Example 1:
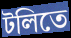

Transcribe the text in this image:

টলিতে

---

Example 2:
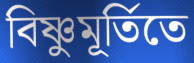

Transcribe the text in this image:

বিষ্ণুমূর্তিতে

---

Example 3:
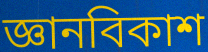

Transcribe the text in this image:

জ্ঞানবিকাশ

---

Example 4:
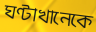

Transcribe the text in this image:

ঘণ্টাখানেকে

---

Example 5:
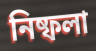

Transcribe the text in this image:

নিষ্ফলা